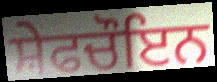
ਸ਼ੇਫਚੌਇਨ